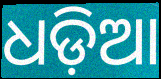
ଧଡ଼ିଆ